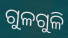
ଗୁଳଗୁଳି